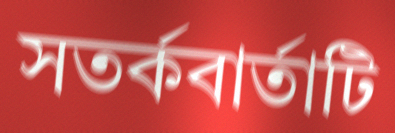
সতর্কবার্তাটি